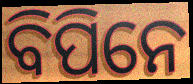
ବିପିନେ